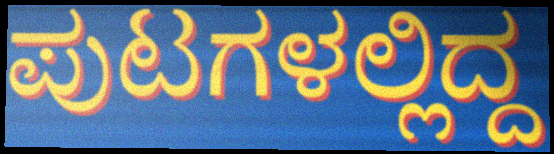
ಪುಟಗಳಲ್ಲಿದ್ದ